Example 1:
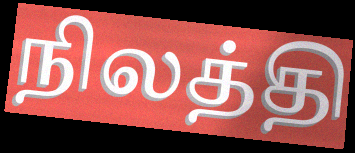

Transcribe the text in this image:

நிலத்தி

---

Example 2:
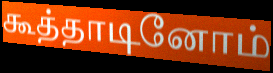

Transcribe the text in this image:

கூத்தாடினோம்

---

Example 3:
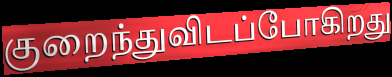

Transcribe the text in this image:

குறைந்துவிடப்போகிறது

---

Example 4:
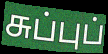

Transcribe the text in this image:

சுப்புப்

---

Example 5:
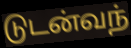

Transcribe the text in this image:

டுடன்வந்